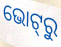
ଭୋଟ୍‌ରୁ